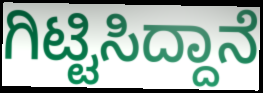
ಗಿಟ್ಟಿಸಿದ್ದಾನೆ